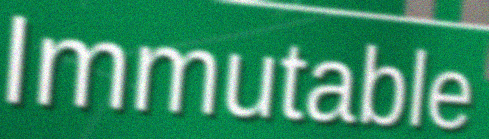
Immutable